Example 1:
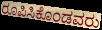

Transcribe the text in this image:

ರೂಪಿಸಿಕೊಂಡವರು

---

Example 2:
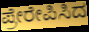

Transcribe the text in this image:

ಪ್ರೇರೇಪಿಸಿದ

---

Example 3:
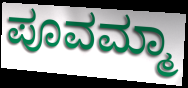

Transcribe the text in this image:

ಪೂವಮ್ಮಾ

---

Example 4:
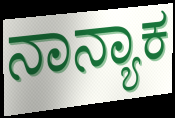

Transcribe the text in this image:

ನಾನ್ಯಾಕ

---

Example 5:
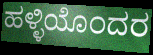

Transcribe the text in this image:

ಹಳ್ಳಿಯೊಂದರ